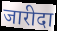
जारीदा